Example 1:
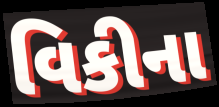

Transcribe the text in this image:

વિકીના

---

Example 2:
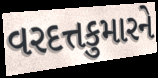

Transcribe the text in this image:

વરદત્તકુમારને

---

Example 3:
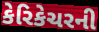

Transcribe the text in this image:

કેરિકેચરની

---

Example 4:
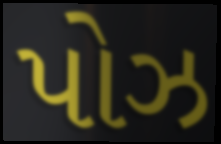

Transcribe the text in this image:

પોઝ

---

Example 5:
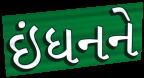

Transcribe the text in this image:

ઇંધનને